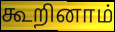
கூறினாம்